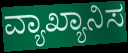
ವ್ಯಾಖ್ಯಾನಿಸ